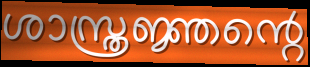
ശാസ്ത്രജ്ഞന്റെ